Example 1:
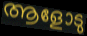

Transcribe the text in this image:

ആളോടു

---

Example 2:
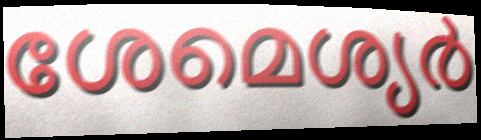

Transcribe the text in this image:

ശേമെശ്യർ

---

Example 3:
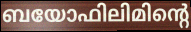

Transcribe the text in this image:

ബയോഫിലിമിന്റെ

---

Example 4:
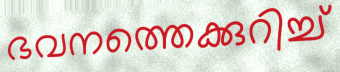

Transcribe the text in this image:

ഭവനത്തെക്കുറിച്ച്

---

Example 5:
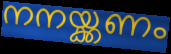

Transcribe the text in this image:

നനയ്ക്കണം